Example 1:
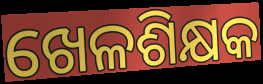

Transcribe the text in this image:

ଖେଳଶିକ୍ଷକ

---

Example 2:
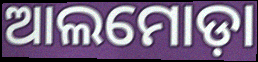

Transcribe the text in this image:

ଆଲମୋଡ଼ା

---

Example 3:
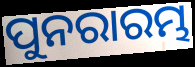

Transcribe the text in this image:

ପୁନରାରମ୍ଭ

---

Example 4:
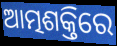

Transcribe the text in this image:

ଆତ୍ମଶକ୍ତିରେ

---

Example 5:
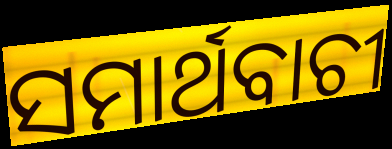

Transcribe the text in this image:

ସମାର୍ଥବାଚୀ